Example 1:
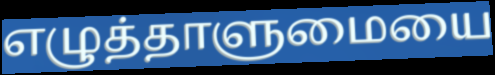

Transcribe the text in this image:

எழுத்தாளுமையை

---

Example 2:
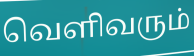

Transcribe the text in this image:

வெளிவரும்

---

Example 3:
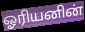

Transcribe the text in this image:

ஓரியனின்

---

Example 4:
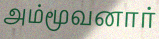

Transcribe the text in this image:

அம்மூவனார்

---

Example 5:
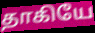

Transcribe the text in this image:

தாகியே